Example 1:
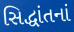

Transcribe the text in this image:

સિદ્ધાંતનાં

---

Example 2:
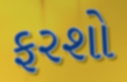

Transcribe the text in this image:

ફરશો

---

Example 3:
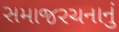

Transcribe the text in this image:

સમાજરચનાનું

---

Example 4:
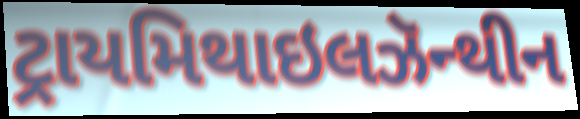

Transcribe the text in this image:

ટ્રાયમિથાઇલઝૅન્થીન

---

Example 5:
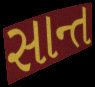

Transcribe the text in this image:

સાન્ત